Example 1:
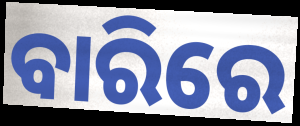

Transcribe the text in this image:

ବାରିରେ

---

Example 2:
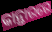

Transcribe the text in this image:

କାନ୍ତାରରେ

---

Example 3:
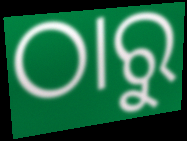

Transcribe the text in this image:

ଠାରୁ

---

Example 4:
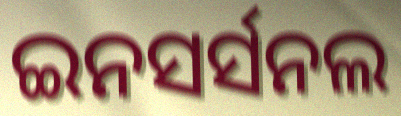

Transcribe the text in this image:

ଇନସର୍ସନଲ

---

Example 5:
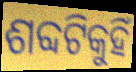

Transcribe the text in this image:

ଶବ୍ଦଟିକୁହିଁ